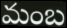
మంబ